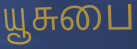
யூசுபை